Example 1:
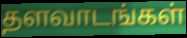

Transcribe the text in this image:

தளவாடங்கள்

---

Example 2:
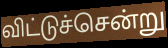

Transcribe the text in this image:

விட்டுச்சென்று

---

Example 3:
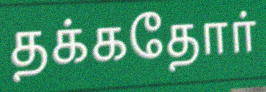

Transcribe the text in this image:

தக்கதோர்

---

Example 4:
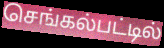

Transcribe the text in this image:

செங்கல்பட்டில்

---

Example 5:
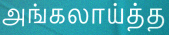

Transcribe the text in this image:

அங்கலாய்த்த